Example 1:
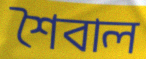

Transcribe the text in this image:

শৈবাল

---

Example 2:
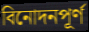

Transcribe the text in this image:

বিনোদনপূর্ণ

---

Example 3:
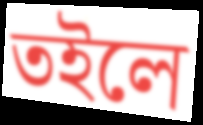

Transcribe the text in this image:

তইলে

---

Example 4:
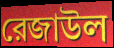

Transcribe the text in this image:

রেজাউল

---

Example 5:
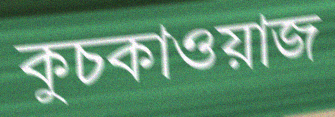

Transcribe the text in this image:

কুচকাওয়াজ